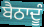
ਬੈਠਾਦੂੰ